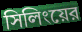
সিলিংয়ের